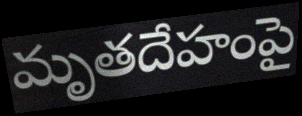
మృతదేహంపై